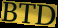
BTD